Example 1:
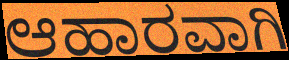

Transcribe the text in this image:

ಆಹಾರವಾಗಿ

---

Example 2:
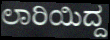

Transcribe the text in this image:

ಲಾರಿಯಿದ್ದ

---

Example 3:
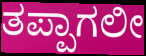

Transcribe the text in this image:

ತಪ್ಪಾಗಲೀ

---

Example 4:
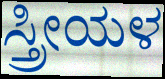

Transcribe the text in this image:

ಸ್ತ್ರೀಯಳ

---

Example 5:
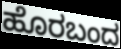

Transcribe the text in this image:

ಹೊರಬಂದ